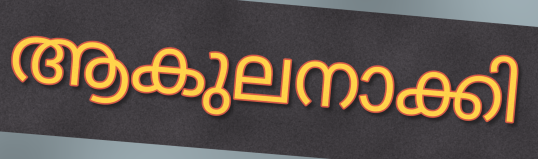
ആകുലനാക്കി